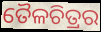
ତୈଳଚିତ୍ରର